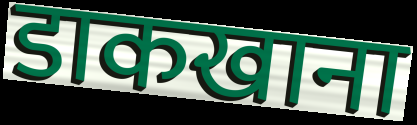
डाकखाना